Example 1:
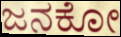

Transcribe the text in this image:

ಜನಕೋ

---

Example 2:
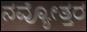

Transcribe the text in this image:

ನವ್ಯೋತ್ತರ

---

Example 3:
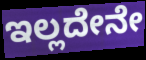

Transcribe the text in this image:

ಇಲ್ಲದೇನೇ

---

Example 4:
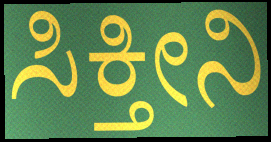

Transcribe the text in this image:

ಸಿಕ್ತೀನಿ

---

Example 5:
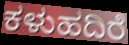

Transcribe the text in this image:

ಕಳುಹದಿರೆ